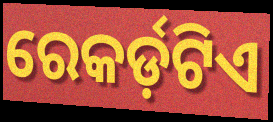
ରେକର୍ଡ଼ଟିଏ